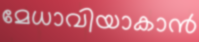
മേധാവിയാകാൻ